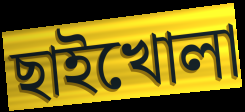
ছাইখোলা